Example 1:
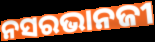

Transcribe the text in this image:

ନସରଭାନଜୀ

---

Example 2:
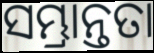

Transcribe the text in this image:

ସମ୍ଭ୍ରାନ୍ତତା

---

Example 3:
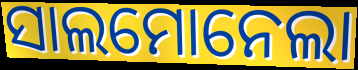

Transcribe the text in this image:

ସାଲମୋନେଲା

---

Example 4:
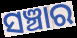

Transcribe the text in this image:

ସଞ୍ଚାର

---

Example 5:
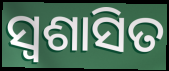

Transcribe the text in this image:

ସ୍ୱଶାସିତ